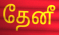
தேனீ